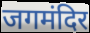
जगमंदिर